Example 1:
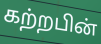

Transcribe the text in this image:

கற்றபின்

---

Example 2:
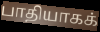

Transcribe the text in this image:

பாதியாகக்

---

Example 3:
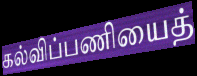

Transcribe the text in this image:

கல்விப்பணியைத்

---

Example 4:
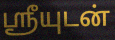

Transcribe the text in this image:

ஸ்ரீயுடன்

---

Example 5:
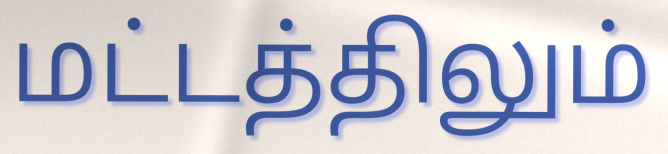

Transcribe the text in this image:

மட்டத்திலும்